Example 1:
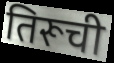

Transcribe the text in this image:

तिरूची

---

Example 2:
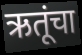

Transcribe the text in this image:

ऋतूंचा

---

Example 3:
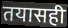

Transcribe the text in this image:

तयासही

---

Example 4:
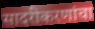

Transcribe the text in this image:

सादरीकरणांचा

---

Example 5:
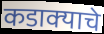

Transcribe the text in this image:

कडाक्याचे